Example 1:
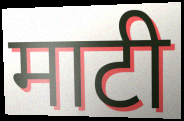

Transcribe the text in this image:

माटी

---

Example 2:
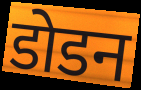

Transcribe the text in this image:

डोडन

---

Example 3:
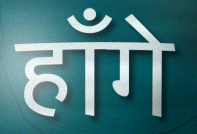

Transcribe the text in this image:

हाँगे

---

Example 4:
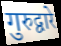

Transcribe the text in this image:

गुरुद्वारे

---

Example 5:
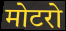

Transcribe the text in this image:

मोटरो